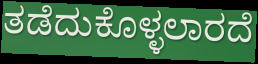
ತಡೆದುಕೊಳ್ಳಲಾರದೆ